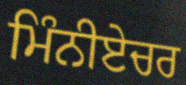
ਮਿੰਨੀਏਚਰ